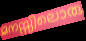
മനസ്സിലൊരു